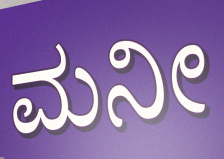
ಮನೀ